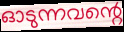
ഓടുന്നവന്റെ